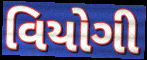
વિયોગી